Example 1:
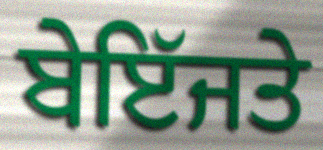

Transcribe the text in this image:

ਬੇਇੱਜਤੇ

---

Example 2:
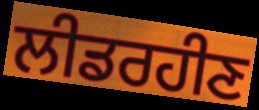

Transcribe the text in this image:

ਲੀਡਰਹੀਣ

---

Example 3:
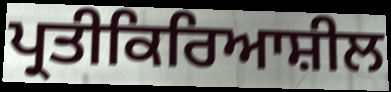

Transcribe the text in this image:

ਪ੍ਰਤੀਕਿਰਿਆਸ਼ੀਲ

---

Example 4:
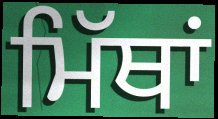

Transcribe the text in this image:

ਮਿੱਥਾਂ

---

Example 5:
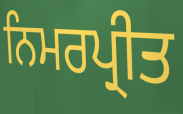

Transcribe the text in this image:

ਨਿਮਰਪ੍ਰੀਤ